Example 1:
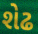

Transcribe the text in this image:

શેઢ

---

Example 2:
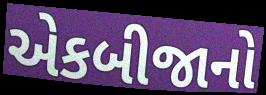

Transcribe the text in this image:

એકબીજાનો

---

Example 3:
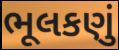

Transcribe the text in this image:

ભૂલકણું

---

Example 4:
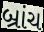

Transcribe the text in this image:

બ્રાંચ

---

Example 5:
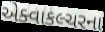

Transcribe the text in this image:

એક્વાકલ્ચરના